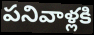
పనివాళ్లకి